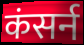
कंसर्न